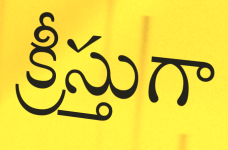
క్రీస్తుగా